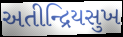
અતીન્દ્રિયસુખ